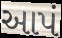
આપં